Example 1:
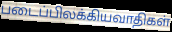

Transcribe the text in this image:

படைப்பிலக்கியவாதிகள்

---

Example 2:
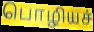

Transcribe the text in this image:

பொழியச்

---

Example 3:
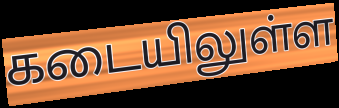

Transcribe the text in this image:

கடையிலுள்ள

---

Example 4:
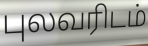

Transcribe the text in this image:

புலவரிடம்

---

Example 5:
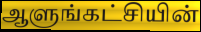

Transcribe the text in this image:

ஆளுங்கட்சியின்